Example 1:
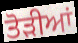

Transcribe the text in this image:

ਤੋਡ਼ੀਆਂ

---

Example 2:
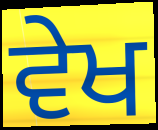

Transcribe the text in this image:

ਵੇਖ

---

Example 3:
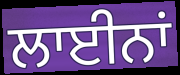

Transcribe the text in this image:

ਲਾਈਨਾਂ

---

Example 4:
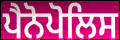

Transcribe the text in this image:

ਪੈਨੋਪੋਲਿਸ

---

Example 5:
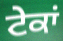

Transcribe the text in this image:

ਟੇਕਾਂ